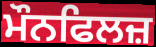
ਮੌਨਫਿਲਜ਼